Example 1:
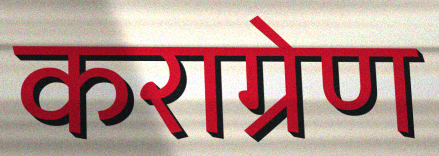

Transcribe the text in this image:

कराग्रेण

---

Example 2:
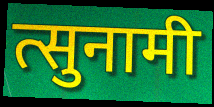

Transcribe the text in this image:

त्सुनामी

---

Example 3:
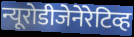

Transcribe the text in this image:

न्यूरोडीजेनेरेटिव्ह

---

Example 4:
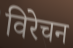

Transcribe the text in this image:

विरेचन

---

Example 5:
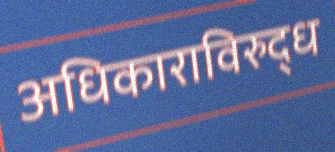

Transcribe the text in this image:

अधिकाराविरुद्ध